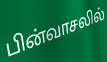
பின்வாசலில்